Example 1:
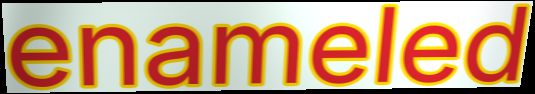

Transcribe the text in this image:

enameled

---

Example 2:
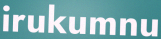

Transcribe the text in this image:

irukumnu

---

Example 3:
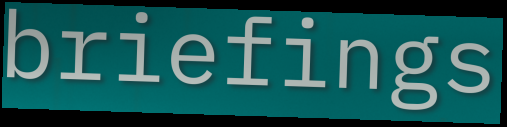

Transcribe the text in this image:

briefings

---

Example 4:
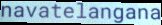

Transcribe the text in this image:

navatelangana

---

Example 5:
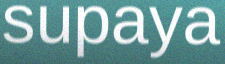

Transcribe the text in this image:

supaya